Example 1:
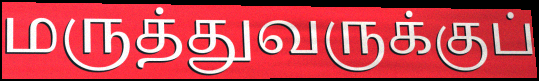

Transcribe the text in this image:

மருத்துவருக்குப்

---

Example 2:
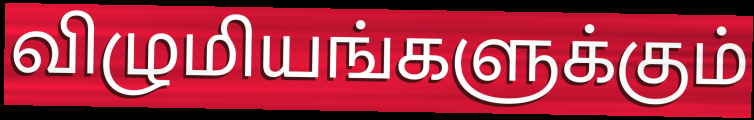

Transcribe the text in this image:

விழுமியங்களுக்கும்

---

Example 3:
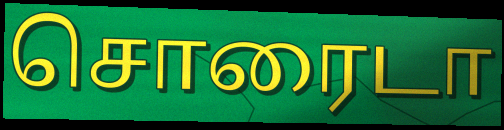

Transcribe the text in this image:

சொரைடா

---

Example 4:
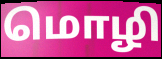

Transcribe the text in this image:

மொழி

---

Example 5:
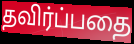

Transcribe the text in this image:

தவிர்ப்பதை